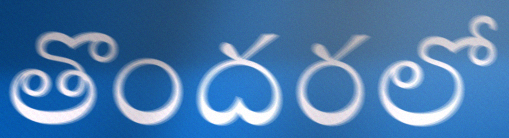
తొందరలో